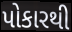
પોકારથી